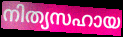
നിത്യസഹായ